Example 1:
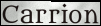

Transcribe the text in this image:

Carrion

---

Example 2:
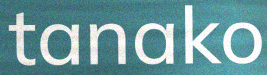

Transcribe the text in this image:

tanako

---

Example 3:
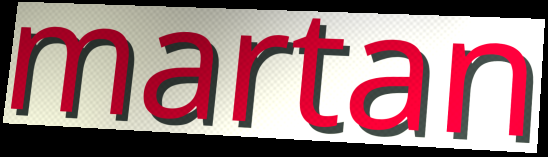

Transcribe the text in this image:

martan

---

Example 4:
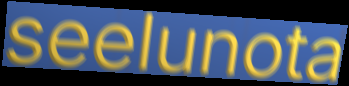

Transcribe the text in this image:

seelunota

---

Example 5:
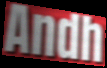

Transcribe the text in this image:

Andh